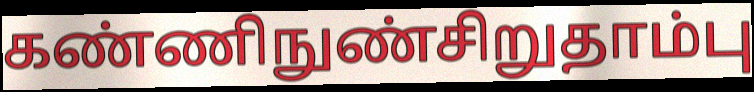
கண்ணிநுண்சிறுதாம்பு